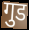
गुड